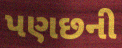
પણછની